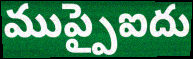
ముప్పైఐదు